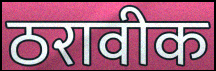
ठरावीक